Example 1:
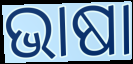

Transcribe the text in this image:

ଭାଷା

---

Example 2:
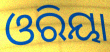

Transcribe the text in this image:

ଓରିୟା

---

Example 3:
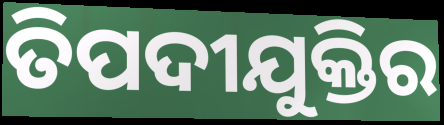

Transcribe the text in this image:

ତିପଦୀଯୁକ୍ତିର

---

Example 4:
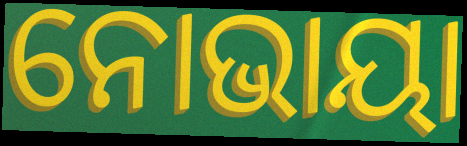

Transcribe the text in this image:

ନୋଭାୟା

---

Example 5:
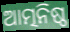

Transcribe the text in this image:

ଆତ୍ମନିଷ୍ଠ